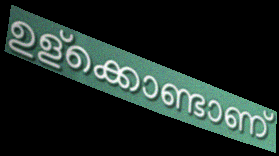
ഉള്ക്കൊണ്ടാണ്